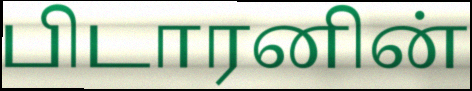
பிடாரனின்